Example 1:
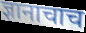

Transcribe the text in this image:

ज्ञानाचाच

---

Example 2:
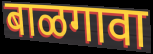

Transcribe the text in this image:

बाळगावा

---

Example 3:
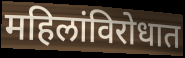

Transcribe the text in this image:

महिलांविरोधात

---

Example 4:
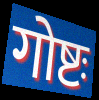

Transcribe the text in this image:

गोष्टः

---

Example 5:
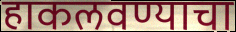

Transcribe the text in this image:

हाकलवण्याचा